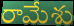
రామేశు